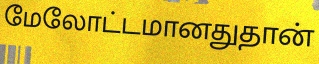
மேலோட்டமானதுதான்